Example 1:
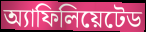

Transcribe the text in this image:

অ্যাফিলিয়েটেড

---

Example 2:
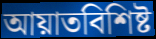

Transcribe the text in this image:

আয়াতবিশিষ্ট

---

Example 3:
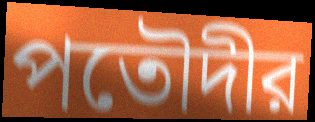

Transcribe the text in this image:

পতৌদীর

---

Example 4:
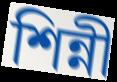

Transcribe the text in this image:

শিন্নী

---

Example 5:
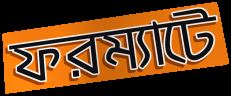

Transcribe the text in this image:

ফরম্যাটে